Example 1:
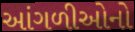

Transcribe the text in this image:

આંગળીઓનો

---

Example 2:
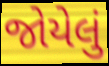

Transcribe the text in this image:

જોયેલું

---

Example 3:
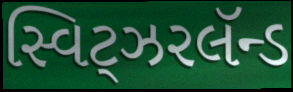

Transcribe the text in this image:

સ્વિટ્ઝરલૅન્ડ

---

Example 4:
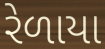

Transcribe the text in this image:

રેળાયા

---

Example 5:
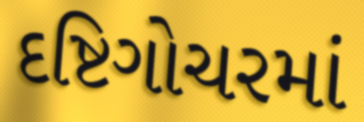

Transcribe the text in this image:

દષ્ટિગોચરમાં